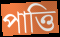
পাত্তি